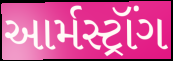
આર્મસ્ટ્રૉંગ